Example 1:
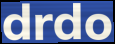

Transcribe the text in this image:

drdo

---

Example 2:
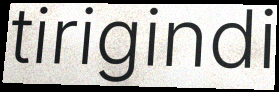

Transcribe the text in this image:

tirigindi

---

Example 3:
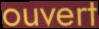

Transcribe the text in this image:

ouvert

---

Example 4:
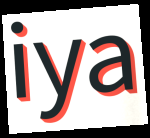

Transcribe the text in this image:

iya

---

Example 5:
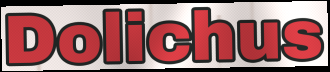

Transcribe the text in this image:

Dolichus